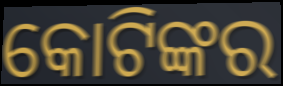
କୋଟିଙ୍କର